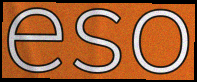
eso